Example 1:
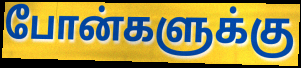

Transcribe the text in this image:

போன்களுக்கு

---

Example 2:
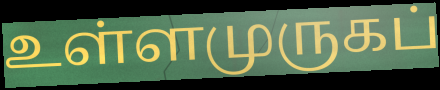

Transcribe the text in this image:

உள்ளமுருகப்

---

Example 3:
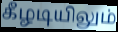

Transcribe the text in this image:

கீழடியிலும்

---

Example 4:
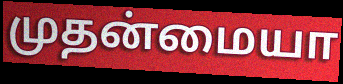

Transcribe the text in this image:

முதன்மையா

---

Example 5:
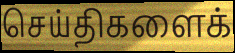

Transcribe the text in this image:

செய்திகளைக்